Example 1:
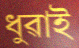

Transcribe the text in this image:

ধুৱাই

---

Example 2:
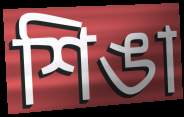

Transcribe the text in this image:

শিঙা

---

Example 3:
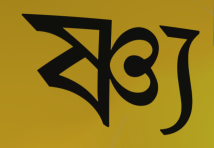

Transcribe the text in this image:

ষ্ণ্য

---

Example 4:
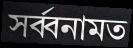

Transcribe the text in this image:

সৰ্ব্বনামত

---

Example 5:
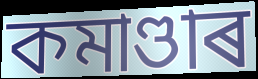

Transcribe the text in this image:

কমাণ্ডাৰ